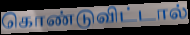
கொண்டுவிட்டால்